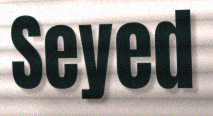
Seyed